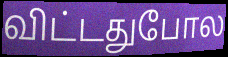
விட்டதுபோல